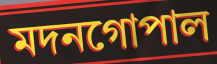
মদনগোপাল